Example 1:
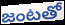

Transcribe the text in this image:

జంటతో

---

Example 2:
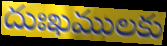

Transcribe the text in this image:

దుఃఖములకు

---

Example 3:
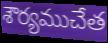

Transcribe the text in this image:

శౌర్యముచేత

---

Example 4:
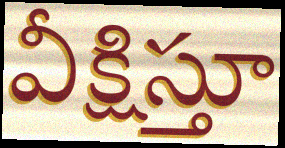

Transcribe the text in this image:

వీక్షిస్తూ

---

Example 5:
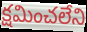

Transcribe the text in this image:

క్షమించలేని